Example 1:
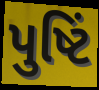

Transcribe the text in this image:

પુષ્ટિં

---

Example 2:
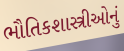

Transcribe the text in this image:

ભૌતિકશાસ્ત્રીઓનું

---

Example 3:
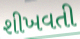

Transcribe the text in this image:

શીખવતી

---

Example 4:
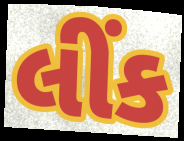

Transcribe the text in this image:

લીંક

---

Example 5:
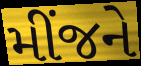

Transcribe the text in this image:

મીંજને